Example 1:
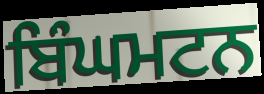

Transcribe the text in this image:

ਬਿੰਘਮਟਨ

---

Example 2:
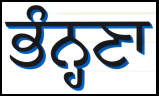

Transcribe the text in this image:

ਭੰਨ੍ਹਣਾ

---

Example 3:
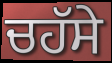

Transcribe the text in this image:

ਚਹੱਸੇ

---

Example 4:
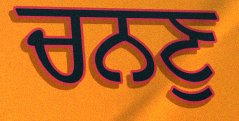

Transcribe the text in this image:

ਚਨਣੁ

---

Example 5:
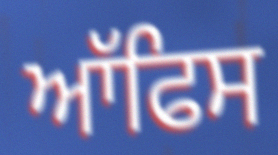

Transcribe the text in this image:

ਆੱਫਿਸ